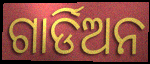
ଗାର୍ଡିଅନ